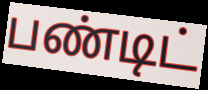
பண்டிட்